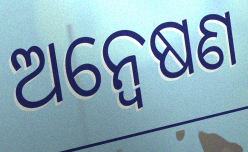
ଅନ୍ବେଷଣ